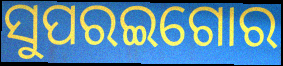
ସୁପରଇଗୋର